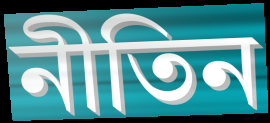
নীতিন